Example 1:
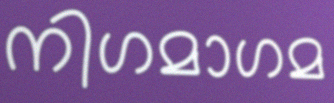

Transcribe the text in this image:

നിഗമാഗമ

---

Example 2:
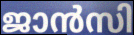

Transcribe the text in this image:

ജാൻസി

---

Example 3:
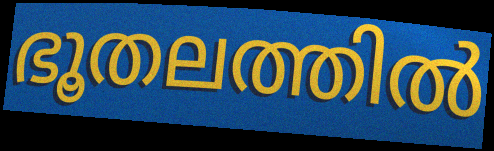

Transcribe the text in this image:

ഭൂതലത്തിൽ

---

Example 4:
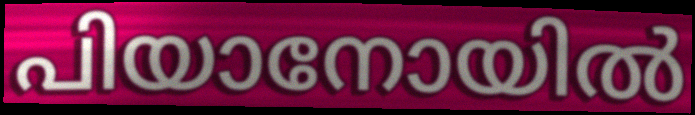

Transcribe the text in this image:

പിയാനോയിൽ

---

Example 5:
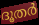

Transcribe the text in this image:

ദൂതർ